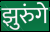
झुरुंगे